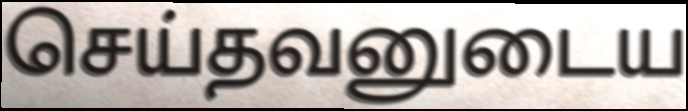
செய்தவனுடைய